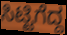
ಸಿಟ್ಟಿಗೆದ್ದ